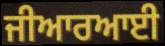
ਜੀਆਰਆਈ